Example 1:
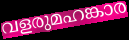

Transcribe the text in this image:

വളരുമഹങ്കാര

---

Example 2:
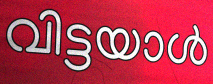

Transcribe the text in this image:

വിട്ടയാൾ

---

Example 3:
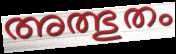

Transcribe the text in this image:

അത്ഭുതം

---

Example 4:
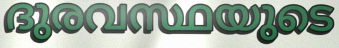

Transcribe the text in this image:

ദുരവസ്ഥയുടെ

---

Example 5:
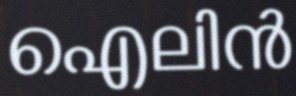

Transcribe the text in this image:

ഐലിൻ